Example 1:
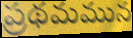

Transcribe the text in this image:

ప్రథమమున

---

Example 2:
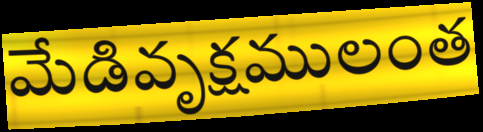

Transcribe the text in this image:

మేడివృక్షములంత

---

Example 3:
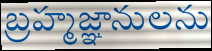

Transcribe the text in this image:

బ్రహ్మజ్ఞానులను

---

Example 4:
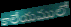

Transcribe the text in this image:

కాలేయములో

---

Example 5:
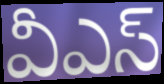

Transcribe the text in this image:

వీఎస్